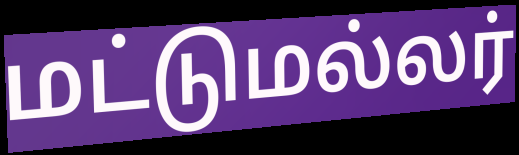
மட்டுமல்லர்